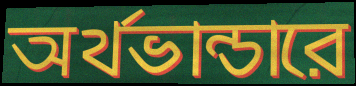
অর্থভান্ডারে